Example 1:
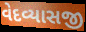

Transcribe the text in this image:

વેદવ્યાસજી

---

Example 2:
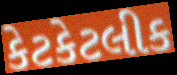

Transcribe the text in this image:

કેટકેટલીક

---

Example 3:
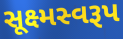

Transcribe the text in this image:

સૂક્ષ્મસ્વરૂપ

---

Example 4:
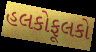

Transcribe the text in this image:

હલકોફૂલકો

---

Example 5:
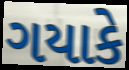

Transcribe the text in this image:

ગયાકે